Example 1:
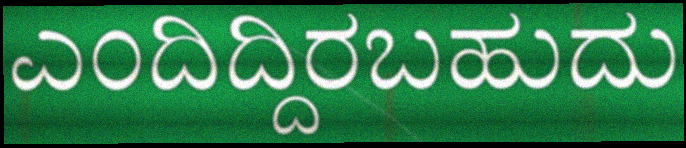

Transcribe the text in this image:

ಎಂದಿದ್ದಿರಬಹುದು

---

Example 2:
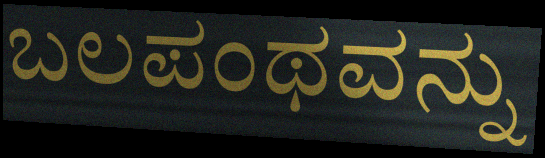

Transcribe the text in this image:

ಬಲಪಂಥವನ್ನು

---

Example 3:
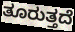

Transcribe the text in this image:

ತೂರುತ್ತದೆ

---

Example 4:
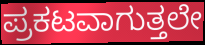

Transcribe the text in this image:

ಪ್ರಕಟವಾಗುತ್ತಲೇ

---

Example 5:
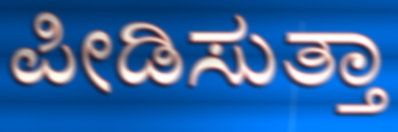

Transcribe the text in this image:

ಪೀಡಿಸುತ್ತಾ